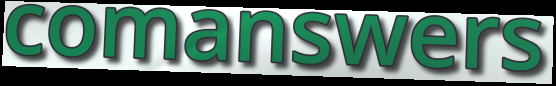
comanswers